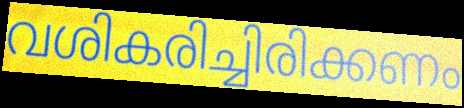
വശികരിച്ചിരിക്കണം